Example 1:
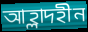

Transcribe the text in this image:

আহ্লাদহীন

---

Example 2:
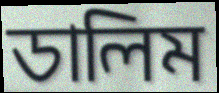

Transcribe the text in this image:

ডালিম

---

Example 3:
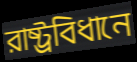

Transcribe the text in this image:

রাষ্ট্রবিধানে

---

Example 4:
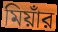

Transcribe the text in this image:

মিয়াঁর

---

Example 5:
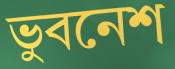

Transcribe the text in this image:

ভুবনেশ